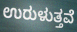
ಉರುಳುತ್ತವೆ